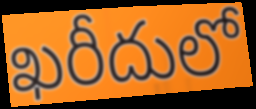
ఖరీదులో